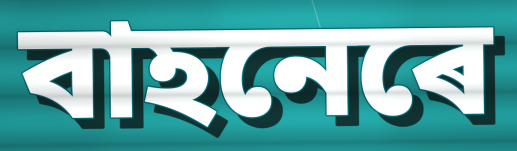
বাহনেৰে